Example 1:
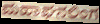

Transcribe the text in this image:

ಮಹಾಘನಲಿಂಗ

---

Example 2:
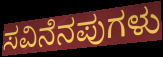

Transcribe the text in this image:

ಸವಿನೆನಪುಗಳು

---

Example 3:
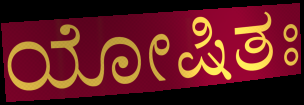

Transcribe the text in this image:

ಯೋಷಿತಃ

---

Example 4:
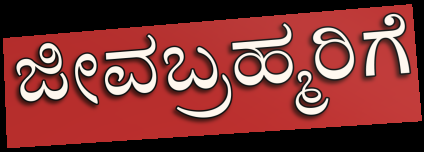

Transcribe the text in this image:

ಜೀವಬ್ರಹ್ಮರಿಗೆ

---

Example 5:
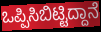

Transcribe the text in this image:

ಒಪ್ಪಿಸಿಬಿಟ್ಟಿದ್ದಾನೆ